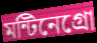
মন্টিনেগ্রো